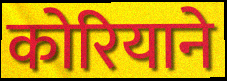
कोरियाने